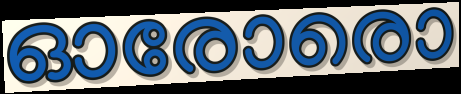
ഓരോരൊ